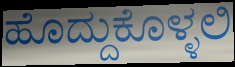
ಹೊದ್ದುಕೊಳ್ಳಲಿ